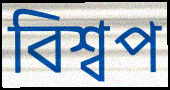
বিশ্বপ